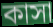
কাসা